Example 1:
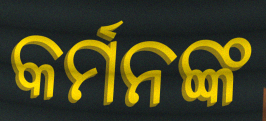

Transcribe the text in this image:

କର୍ମନଙ୍କ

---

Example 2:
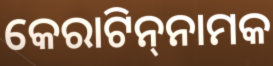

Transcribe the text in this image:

କେରାଟିନ୍‌ନାମକ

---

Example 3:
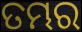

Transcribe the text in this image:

ତମ୍ଭର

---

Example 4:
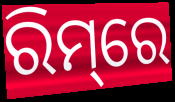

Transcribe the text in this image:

ରିମ୍‌ରେ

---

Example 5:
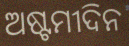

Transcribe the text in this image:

ଅଷ୍ଟମୀଦିନ